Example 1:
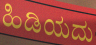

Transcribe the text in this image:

ಹಿಡಿಯದು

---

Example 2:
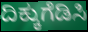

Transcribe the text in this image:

ದಿಕ್ಕುಗೆಡಿಸಿ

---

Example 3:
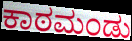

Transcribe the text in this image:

ಕಾಠಮಂಡು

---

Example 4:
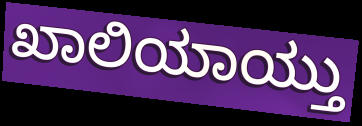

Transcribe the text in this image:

ಖಾಲಿಯಾಯ್ತು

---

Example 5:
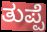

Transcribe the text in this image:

ತುಪ್ಪೆ